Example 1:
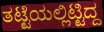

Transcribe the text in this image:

ತಟ್ಟೆಯಲ್ಲಿಟ್ಟಿದ್ದ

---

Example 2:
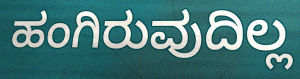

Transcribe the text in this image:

ಹಂಗಿರುವುದಿಲ್ಲ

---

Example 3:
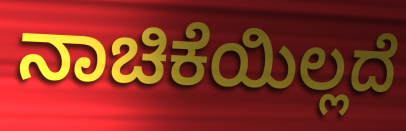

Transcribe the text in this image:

ನಾಚಿಕೆಯಿಲ್ಲದೆ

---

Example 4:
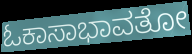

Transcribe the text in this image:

ಓಕಾಸಾಭಾವತೋ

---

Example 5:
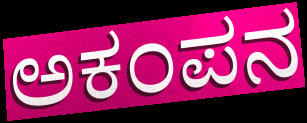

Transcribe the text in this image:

ಅಕಂಪನ